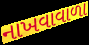
નાખવાવાળા